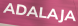
ADALAJA